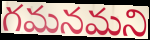
గమనమని